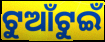
ଟୁଆଁଟୁଇଁ